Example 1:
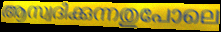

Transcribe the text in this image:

ആസ്വദിക്കുന്നതുപോലെ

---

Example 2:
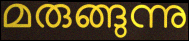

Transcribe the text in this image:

മരുങ്ങുന്നു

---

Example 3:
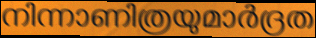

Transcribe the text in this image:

നിന്നാണിത്രയുമാർദ്രത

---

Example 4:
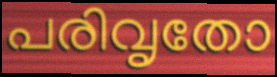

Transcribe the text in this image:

പരിവൃതോ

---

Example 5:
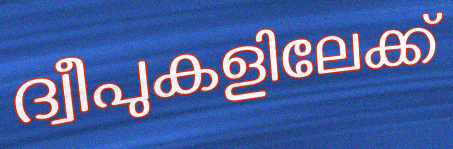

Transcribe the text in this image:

ദ്വീപുകളിലേക്ക്